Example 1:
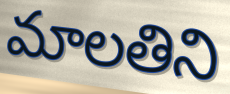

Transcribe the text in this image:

మాలతిని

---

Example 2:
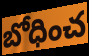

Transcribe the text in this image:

బోధించ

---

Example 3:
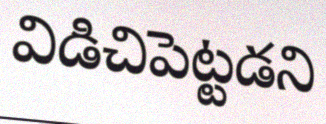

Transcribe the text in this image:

విడిచిపెట్టడని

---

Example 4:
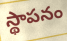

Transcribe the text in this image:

స్థాపనం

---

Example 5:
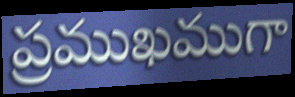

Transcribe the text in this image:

ప్రముఖముగా